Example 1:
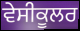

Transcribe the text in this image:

ਵੇਸੀਕੂਲਰ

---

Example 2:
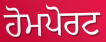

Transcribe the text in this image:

ਹੋਮਪੋਰਟ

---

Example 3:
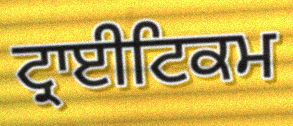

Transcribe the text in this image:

ਟ੍ਰਾਈਟਿਕਮ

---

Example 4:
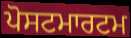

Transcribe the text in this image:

ਪੋਸਟਮਾਰਟਮ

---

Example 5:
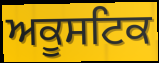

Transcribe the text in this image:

ਅਕੂਸਟਿਕ